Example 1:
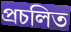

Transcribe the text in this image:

প্ৰচলিত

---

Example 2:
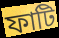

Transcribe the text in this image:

ফাটি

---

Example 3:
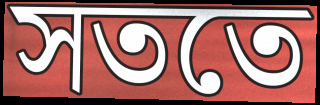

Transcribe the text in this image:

সততে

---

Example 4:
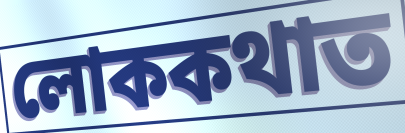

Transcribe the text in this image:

লোককথাত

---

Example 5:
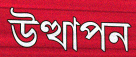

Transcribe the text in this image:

উত্থাপন